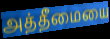
அத்தீமையை